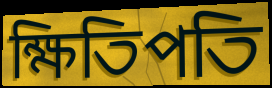
ক্ষিতিপতি